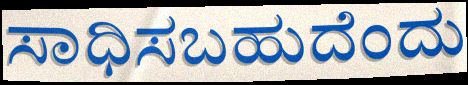
ಸಾಧಿಸಬಹುದೆಂದು